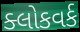
ક્લોકવર્ક